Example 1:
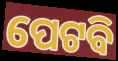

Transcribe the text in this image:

ପେଟବି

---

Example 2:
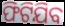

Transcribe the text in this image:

ଫିଟିଯିବ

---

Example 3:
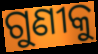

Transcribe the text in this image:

ଗୁଣୀକୁ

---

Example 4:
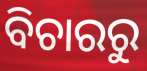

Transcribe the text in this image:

ବିଚାରରୁ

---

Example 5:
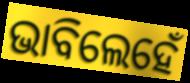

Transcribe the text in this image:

ଭାବିଲେହେଁ